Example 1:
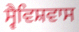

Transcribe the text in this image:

ਸ੍ਵੈਵਿਸ਼ਵਾਸ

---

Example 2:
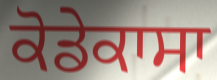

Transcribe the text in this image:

ਕੋਡੇਕਾਸਾ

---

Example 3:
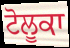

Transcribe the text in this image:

ਟੋਲੂਕਾ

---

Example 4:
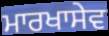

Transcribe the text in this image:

ਮਾਰਖਾਸੇਵ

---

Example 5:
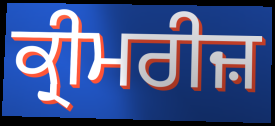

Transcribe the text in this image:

ਕ੍ਰੀਮਰੀਜ਼